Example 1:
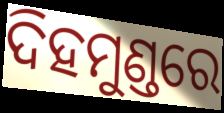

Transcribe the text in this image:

ଦିହମୁଣ୍ଡରେ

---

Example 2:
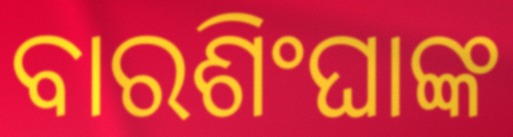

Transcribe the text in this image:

ବାରଶିଂଘାଙ୍କ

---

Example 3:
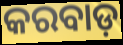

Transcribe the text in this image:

କରବାଡ଼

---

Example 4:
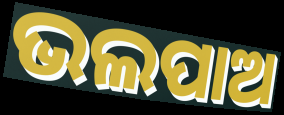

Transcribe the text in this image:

ଭଲପାଅ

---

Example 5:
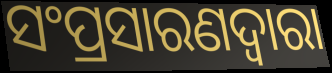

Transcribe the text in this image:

ସଂପ୍ରସାରଣଦ୍ଵାରା